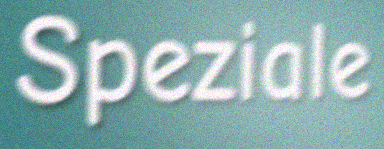
Speziale